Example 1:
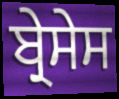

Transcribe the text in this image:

ਬ੍ਰੇਸੇਸ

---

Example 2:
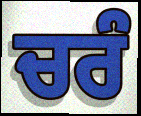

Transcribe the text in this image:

ਚਰੰ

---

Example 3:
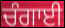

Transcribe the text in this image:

ਚੰਗਾਈ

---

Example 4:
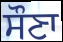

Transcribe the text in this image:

ਸੌਣਾ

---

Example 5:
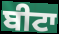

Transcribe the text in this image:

ਬੀਟਾ